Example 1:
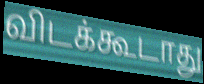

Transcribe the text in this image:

விடக்கூடாது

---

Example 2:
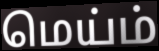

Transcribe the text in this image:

மெய்ம்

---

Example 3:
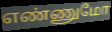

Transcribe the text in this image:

எண்ணுமோ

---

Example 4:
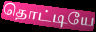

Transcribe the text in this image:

தொட்டியே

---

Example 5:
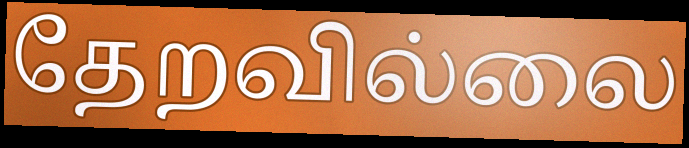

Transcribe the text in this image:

தேறவில்லை